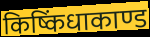
किष्किंधाकाण्ड